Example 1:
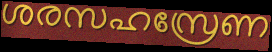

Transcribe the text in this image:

ശരസഹസ്രേണ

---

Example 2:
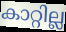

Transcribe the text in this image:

കാറ്റില്ല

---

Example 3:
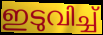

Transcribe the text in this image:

ഇടുവിച്ച്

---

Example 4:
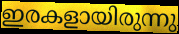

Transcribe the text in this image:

ഇരകളായിരുന്നു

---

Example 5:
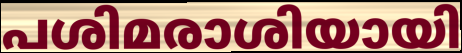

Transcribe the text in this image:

പശിമരാശിയായി